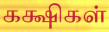
கக்ஷிகள்